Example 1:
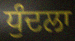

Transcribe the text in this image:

ਧੁੰਦਲਾ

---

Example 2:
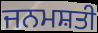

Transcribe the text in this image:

ਜਨਮਸ਼ਤੀ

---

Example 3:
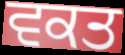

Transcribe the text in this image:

ਵਕਤ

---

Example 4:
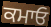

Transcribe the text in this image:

ਕਮਾਓ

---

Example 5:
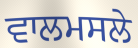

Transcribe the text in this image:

ਵਾਲਮਸਲੇ